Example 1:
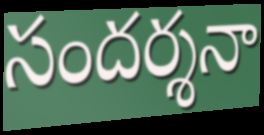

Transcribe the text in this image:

సందర్శనా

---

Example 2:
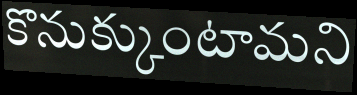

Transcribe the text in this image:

కొనుక్కుంటామని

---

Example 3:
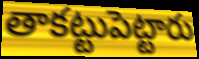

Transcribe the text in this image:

తాకట్టుపెట్టారు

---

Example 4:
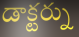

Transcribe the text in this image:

డాక్టర్ను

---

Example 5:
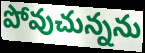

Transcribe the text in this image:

పోవుచున్నను